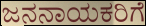
ಜನನಾಯಕರಿಗೆ